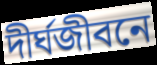
দীর্ঘজীবনে